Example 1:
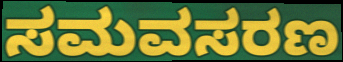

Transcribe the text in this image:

ಸಮವಸರಣ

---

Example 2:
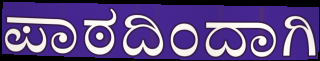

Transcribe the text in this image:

ಪಾಠದಿಂದಾಗಿ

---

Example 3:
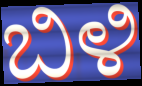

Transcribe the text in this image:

ಬಿಳಿ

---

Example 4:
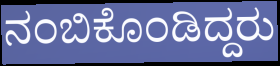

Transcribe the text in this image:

ನಂಬಿಕೊಂಡಿದ್ದರು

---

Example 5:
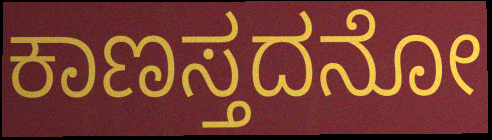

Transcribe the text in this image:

ಕಾಣಸ್ತದನೋ